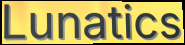
Lunatics